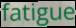
fatigue